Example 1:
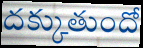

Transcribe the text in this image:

దక్కుతుందో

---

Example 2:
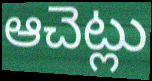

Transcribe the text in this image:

ఆచెట్లు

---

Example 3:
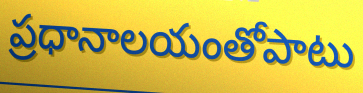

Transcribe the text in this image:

ప్రధానాలయంతోపాటు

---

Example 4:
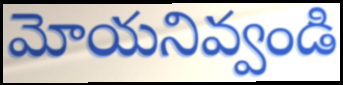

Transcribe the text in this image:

మోయనివ్వండి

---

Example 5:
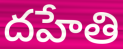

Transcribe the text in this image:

దహేతి